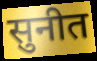
सुनीत